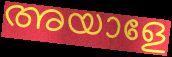
അയാളേ